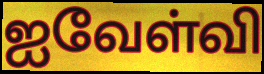
ஐவேள்வி